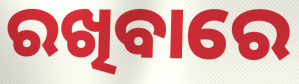
ରଖିବାରେ